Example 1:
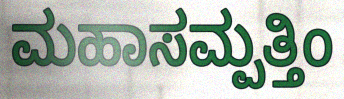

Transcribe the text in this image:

ಮಹಾಸಮ್ಪತ್ತಿಂ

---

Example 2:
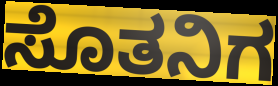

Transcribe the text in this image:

ಸೊತನಿಗ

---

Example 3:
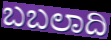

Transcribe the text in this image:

ಬಬಲಾದಿ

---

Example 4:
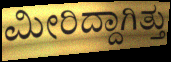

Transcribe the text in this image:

ಮೀರಿದ್ದಾಗಿತ್ತು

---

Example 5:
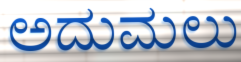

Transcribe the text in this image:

ಅದುಮಲು